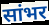
सांभर